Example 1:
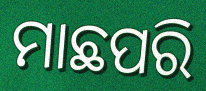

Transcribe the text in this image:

ମାଛପରି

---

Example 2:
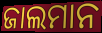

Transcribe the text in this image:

ଜାଲମାନ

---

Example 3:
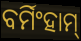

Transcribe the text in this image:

ବର୍ମିଂହାମ୍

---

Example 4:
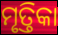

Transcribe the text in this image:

ମୃତ୍ତିକା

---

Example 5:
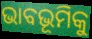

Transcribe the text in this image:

ଭାବଭୂମିକୁ